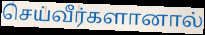
செய்வீர்களானால்